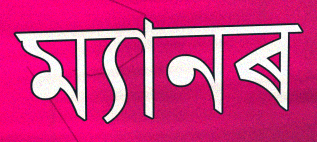
ম্যানৰ